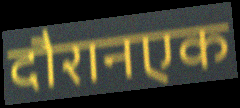
दौरानएक